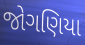
જોગણિયા